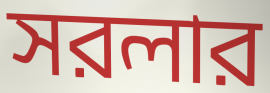
সরলার